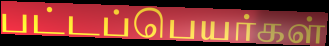
பட்டப்பெயர்கள்